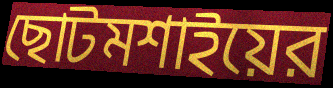
ছোটমশাইয়ের